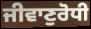
ਜੀਵਾਣੁਰੋਧੀ